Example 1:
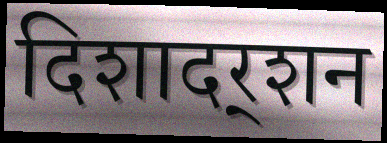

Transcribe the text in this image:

दिशादर्शन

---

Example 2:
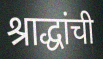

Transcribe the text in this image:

श्राद्धांची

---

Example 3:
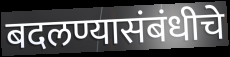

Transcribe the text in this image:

बदलण्यासंबंधीचे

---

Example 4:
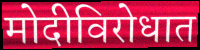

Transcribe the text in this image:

मोदीविरोधात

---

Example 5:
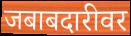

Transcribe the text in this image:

जबाबदारीवर